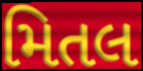
મિતલ